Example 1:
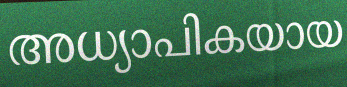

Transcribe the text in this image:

അധ്യാപികയായ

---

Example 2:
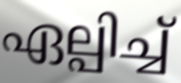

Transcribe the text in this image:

ഏല്പിച്ച്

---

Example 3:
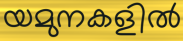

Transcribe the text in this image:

യമുനകളിൽ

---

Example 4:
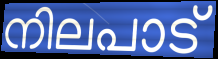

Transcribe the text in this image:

നിലപാട്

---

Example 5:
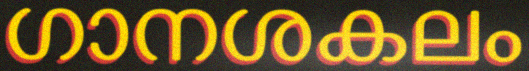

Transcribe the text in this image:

ഗാനശകലം